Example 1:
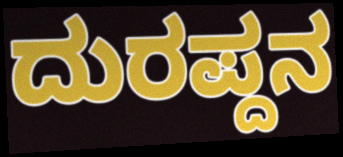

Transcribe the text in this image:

ದುರಪ್ದನ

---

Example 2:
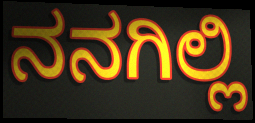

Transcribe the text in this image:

ನನಗಿಲ್ಲಿ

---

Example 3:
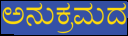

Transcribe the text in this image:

ಅನುಕ್ರಮದ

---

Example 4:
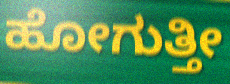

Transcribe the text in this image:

ಹೋಗುತ್ತೀ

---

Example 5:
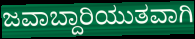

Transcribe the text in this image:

ಜವಾಬ್ದಾರಿಯುತವಾಗಿ